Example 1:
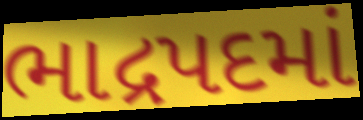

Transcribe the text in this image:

ભાદ્રપદમાં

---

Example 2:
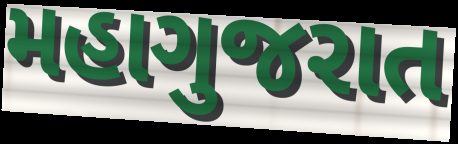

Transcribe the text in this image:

મહાગુજરાત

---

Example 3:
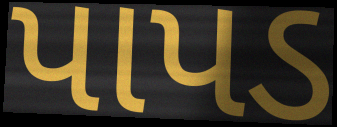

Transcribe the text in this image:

પાપડ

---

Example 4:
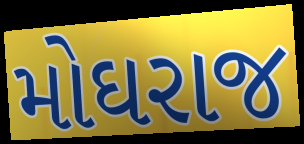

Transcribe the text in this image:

મોઘરાજ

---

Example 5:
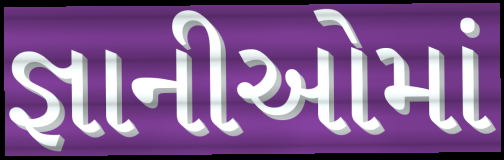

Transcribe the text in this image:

જ્ઞાનીઓમાં